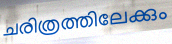
ചരിത്രത്തിലേക്കും